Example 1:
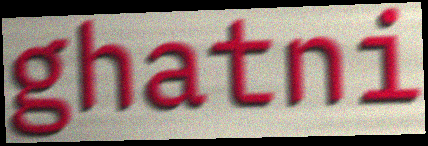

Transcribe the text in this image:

ghatni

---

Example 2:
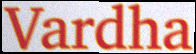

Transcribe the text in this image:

Vardha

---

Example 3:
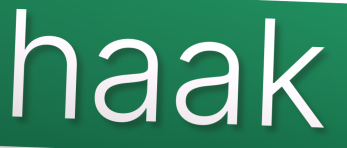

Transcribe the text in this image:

haak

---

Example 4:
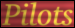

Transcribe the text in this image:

Pilots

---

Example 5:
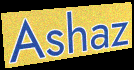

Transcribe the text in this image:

Ashaz